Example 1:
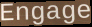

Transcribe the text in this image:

Engage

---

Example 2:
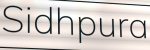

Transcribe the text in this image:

Sidhpura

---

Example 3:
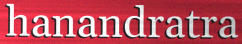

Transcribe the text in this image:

hanandratra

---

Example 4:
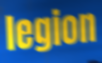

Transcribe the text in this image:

legion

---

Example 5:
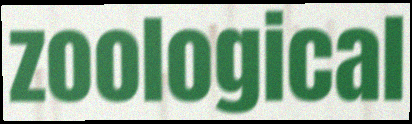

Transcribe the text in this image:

zoological